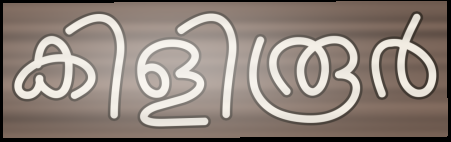
കിളിരൂർ